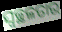
ସ୍ଵଚ୍ଛଳତାର